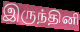
இருந்தினி